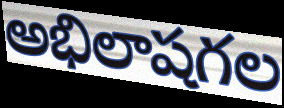
అభిలాషగల